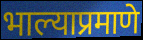
भाल्याप्रमाणे